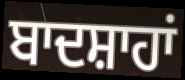
ਬਾਦਸ਼ਾਹਾਂ